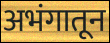
अभंगातून